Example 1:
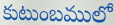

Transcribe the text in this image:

కుటుంబములో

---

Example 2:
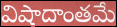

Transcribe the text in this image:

విషాదాంతమే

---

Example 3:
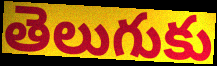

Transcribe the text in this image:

తెలుగుకు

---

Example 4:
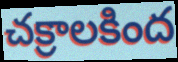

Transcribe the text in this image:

చక్రాలకింద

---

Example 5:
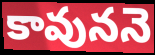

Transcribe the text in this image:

కావుననె